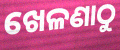
ଖେଳଣାଠୁ